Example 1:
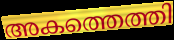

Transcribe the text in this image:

അകത്തെത്തി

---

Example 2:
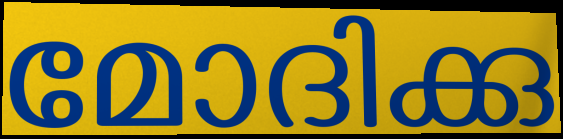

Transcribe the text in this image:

മോദിക്കു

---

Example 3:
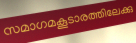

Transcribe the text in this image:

സമാഗമകൂടാരത്തിലേക്കു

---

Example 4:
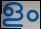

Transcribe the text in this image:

ളം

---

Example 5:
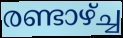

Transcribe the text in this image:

രണ്ടാഴ്ച്ച